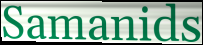
Samanids